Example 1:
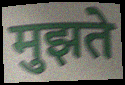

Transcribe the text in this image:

मुझते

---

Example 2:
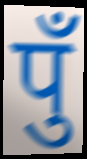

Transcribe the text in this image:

पुँ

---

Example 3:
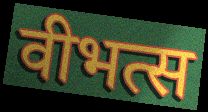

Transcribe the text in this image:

वीभत्स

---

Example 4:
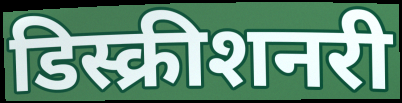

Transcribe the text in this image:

डिस्क्रीशनरी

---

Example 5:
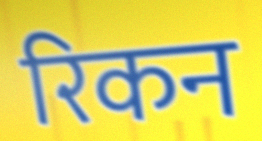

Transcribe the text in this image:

रिकन